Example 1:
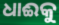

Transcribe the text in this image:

ଧାଈକୁ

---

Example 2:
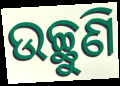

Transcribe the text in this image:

ଉଚ୍ଛୁଣି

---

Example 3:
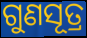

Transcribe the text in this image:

ଗୁଣସୂତ୍ର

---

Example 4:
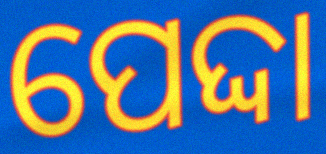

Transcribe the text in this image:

ପେଦ୍ଦା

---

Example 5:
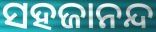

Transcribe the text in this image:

ସହଜାନନ୍ଦ